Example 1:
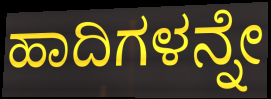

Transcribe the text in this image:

ಹಾದಿಗಳನ್ನೇ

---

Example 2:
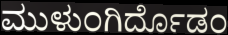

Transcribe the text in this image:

ಮುಳುಂಗಿರ್ದೊಡಂ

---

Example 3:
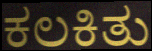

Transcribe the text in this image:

ಕಲಕಿತು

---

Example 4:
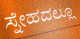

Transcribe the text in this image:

ಸ್ನೇಹದಲ್ಲೂ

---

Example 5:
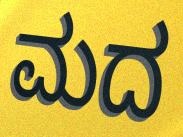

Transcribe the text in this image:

ಮದ